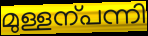
മുള്ളന്പന്നി